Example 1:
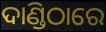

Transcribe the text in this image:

ଦାଣ୍ଡିଠାରେ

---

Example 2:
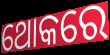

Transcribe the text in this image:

ଥୋକରେ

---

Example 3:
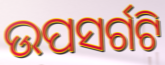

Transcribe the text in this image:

ଉପସର୍ଗଟି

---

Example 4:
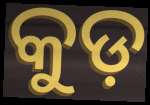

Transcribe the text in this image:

କୁଡ଼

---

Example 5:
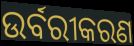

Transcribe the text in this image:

ଉର୍ବରୀକରଣ